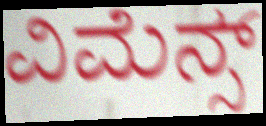
ವಿಮೆನ್ಸ್